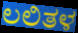
ಲಲಿತಳ